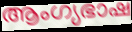
ആംഗ്യഭാഷ